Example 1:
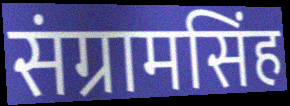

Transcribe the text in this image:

संग्रामसिंह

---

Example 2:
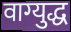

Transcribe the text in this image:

वाग्युद्ध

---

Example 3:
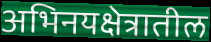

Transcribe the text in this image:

अभिनयक्षेत्रातील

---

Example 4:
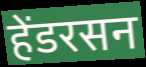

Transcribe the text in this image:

हेंडरसन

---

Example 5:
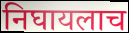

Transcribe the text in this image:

निघायलाच